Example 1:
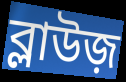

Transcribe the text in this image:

ব্লাউজ়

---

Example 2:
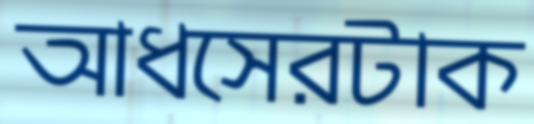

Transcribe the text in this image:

আধসেরটাক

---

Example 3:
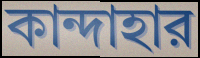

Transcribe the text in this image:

কান্দাহার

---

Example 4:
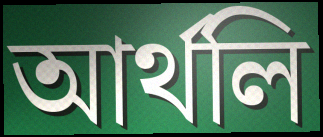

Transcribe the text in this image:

আর্থলি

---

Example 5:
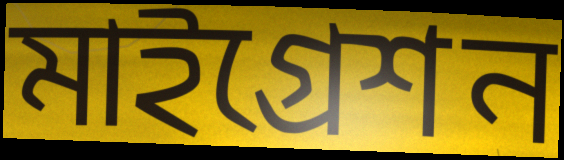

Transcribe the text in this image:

মাইগ্রেশন